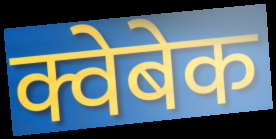
क्वेबेक